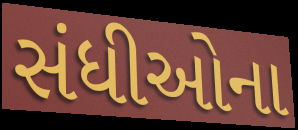
સંધીઓના